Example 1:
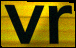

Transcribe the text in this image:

vr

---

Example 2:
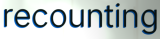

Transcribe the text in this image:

recounting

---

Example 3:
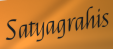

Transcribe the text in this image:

Satyagrahis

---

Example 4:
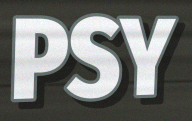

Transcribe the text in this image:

PSY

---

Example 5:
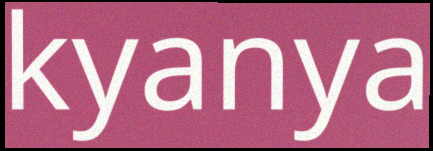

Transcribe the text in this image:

kyanya